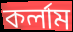
কর্লাম